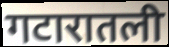
गटारातली